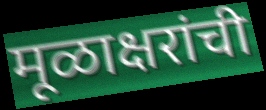
मूळाक्षरांची